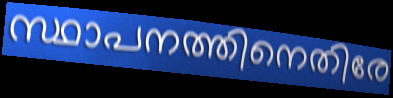
സ്ഥാപനത്തിനെതിരേ